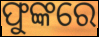
ଫୁଙ୍କରେ